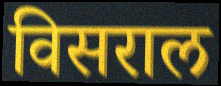
विसराल